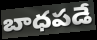
బాధపడే